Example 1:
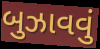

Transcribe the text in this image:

બુઝાવવું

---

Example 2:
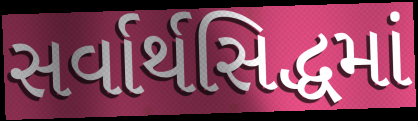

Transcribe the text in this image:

સર્વાર્થસિદ્ધમાં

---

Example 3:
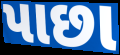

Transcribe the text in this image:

પાછા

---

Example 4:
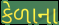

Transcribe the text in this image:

કેળાના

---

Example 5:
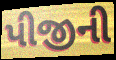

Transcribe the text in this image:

પીજીની